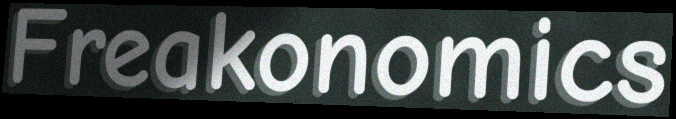
Freakonomics